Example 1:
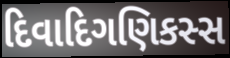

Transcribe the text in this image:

દિવાદિગણિકસ્સ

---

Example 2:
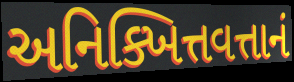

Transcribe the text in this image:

અનિક્ખિત્તવત્તાનં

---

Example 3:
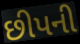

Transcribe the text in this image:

છીપની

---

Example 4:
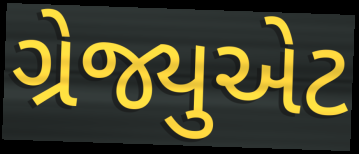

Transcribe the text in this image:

ગ્રેજ્યુએટ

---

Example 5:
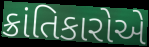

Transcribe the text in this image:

ક્રાંતિકારોએ